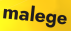
malege